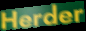
Herder